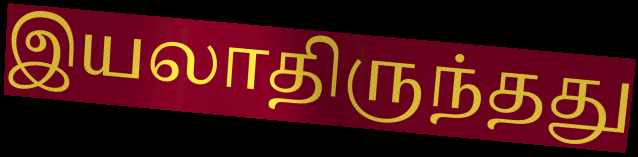
இயலாதிருந்தது